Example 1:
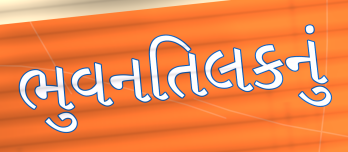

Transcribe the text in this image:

ભુવનતિલકનું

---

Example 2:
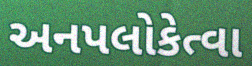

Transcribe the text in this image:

અનપલોકેત્વા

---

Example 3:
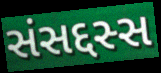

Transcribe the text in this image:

સંસદ્દસ્સ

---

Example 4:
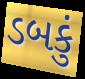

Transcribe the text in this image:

ડબકું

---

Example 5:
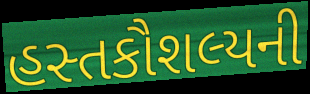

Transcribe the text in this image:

હસ્તકૌશલ્યની